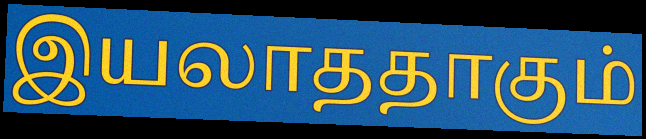
இயலாததாகும்